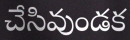
చేసివుండక